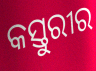
କସ୍ତୁରୀର